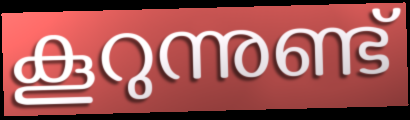
കൂറുന്നുണ്ട്